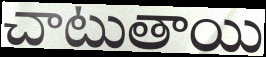
చాటుతాయి